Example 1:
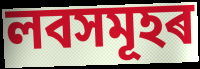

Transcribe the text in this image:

লবসমূহৰ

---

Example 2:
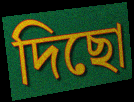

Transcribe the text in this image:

দিছো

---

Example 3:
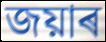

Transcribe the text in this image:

জয়াৰ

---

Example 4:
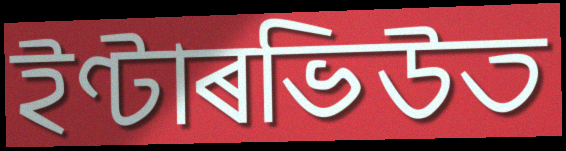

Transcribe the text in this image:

ইণ্টাৰভিউত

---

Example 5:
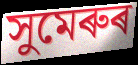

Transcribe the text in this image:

সুমেৰুৰ